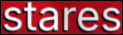
stares